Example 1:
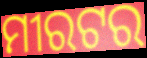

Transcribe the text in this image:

ମୀରଟର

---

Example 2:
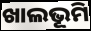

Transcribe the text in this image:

ଖାଲଭୂମି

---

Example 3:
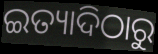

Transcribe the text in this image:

ଇତ୍ୟାଦିଠାରୁ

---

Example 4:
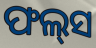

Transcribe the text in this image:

ଫଲ୍‌ସ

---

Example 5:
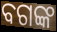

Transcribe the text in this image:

ବଗଙ୍କ